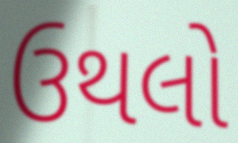
ઉથલો